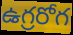
ఉగ్రరోగ